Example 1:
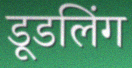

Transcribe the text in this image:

डूडलिंग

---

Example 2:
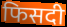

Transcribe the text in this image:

फिसदी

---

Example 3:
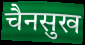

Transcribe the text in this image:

चैनसुख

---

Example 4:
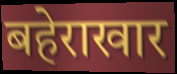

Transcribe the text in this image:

बहेराखार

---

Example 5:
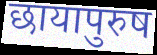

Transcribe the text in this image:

छायापुरुष